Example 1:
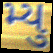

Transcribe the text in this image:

મ્યુ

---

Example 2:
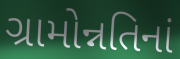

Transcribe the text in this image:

ગ્રામોન્નતિનાં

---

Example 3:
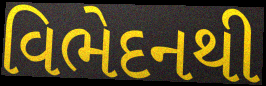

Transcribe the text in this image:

વિભેદનથી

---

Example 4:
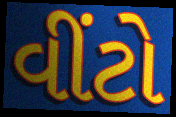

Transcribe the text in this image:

વીંટો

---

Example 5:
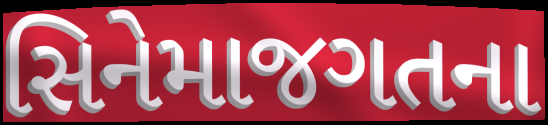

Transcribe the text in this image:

સિનેમાજગતના